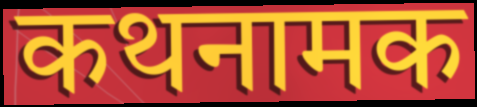
कथनामक